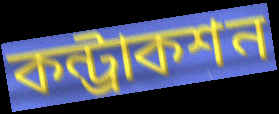
কন্ট্রাকশন